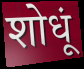
शोधूं